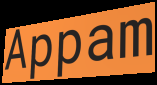
Appam